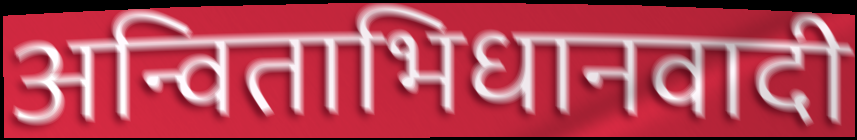
अन्विताभिधानवादी